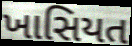
ખાસિયત